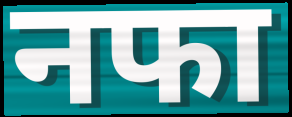
नफा